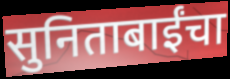
सुनिताबाईंचा